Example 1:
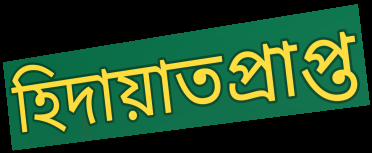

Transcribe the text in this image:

হিদায়াতপ্রাপ্ত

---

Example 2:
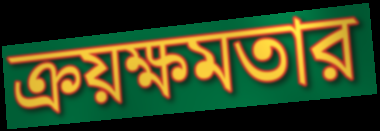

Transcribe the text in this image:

ক্রয়ক্ষমতার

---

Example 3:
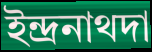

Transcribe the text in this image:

ইন্দ্রনাথদা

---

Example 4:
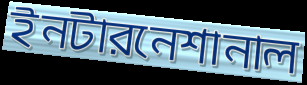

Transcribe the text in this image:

ইনটারনেশানাল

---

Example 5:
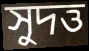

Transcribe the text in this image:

সুদত্ত